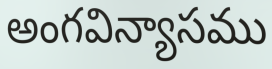
అంగవిన్యాసము